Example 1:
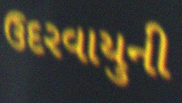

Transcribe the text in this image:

ઉદરવાયુની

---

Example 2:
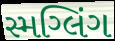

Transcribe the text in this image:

સ્મગ્લિંગ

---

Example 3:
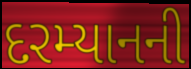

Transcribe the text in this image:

દરમ્યાનની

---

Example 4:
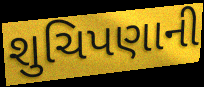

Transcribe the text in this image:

શુચિપણાની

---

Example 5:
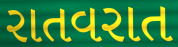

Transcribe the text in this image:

રાતવરાત